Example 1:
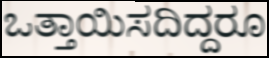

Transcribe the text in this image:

ಒತ್ತಾಯಿಸದಿದ್ದರೂ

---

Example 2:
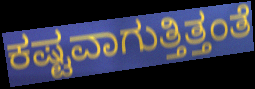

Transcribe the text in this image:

ಕಷ್ಟವಾಗುತ್ತಿತ್ತಂತೆ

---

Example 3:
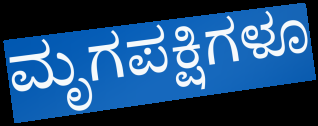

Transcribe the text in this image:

ಮೃಗಪಕ್ಷಿಗಳೂ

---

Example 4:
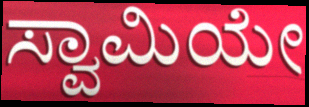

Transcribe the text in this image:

ಸ್ವಾಮಿಯೇ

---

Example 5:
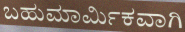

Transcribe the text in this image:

ಬಹುಮಾರ್ಮಿಕವಾಗಿ